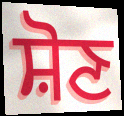
ਸ਼ੋਣ